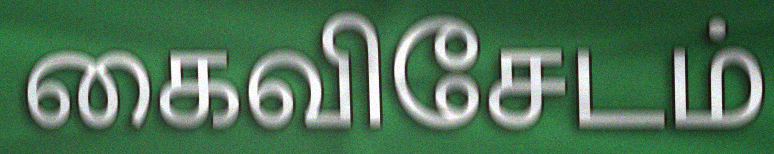
கைவிசேடம்